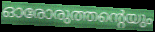
ഓരോരുത്തന്റെയും